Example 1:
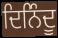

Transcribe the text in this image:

ਦਿਨਿੰਦੂ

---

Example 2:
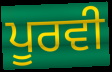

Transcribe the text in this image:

ਪੂਰਵੀ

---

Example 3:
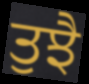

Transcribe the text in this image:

ਤੁਝੈ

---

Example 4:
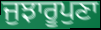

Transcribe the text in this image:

ਜੁਝਾਰੂਪੁਣਾ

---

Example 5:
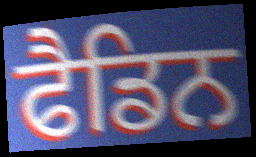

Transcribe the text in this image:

ਫੈਡਿਨ